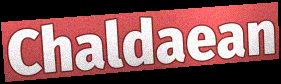
Chaldaean